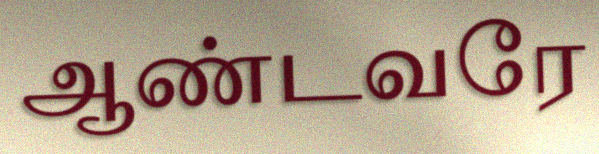
ஆண்டவரே